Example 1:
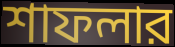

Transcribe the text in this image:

শাফলার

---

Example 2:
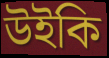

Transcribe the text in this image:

উইকি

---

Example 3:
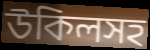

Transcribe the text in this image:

উকিলসহ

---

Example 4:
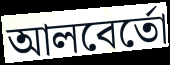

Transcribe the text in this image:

আলবের্তো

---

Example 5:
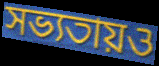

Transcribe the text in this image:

সভ্যতায়ও